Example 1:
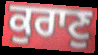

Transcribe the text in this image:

ਕੁਰਾਣੁ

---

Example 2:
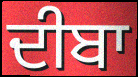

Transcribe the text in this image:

ਦੀਬਾ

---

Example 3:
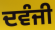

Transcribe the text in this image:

ਦਵੰਜੀ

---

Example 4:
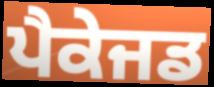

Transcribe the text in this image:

ਪੈਕੇਜਡ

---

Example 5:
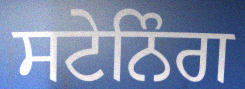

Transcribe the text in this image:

ਸਟੇਨਿੰਗ